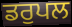
ਡਰੁਪਲ